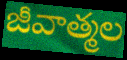
జీవాత్మల